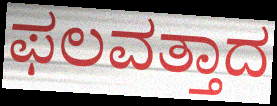
ಫಲವತ್ತಾದ